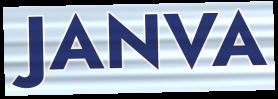
JANVA